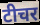
टीचर